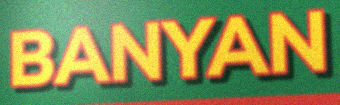
BANYAN